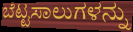
ಬೆಟ್ಟಸಾಲುಗಳನ್ನು